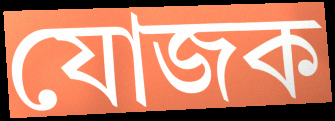
যোজক